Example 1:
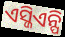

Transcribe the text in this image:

ଏସ୍ଜିଏନ୍ପି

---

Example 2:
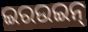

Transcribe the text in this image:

ଇରଉଇନ୍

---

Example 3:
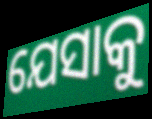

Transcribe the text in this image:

ଯେସାକୁ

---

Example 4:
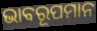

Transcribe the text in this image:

ଭାବରୂପମାନ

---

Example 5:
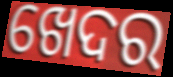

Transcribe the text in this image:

ଖେଦର